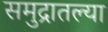
समुद्रातल्या